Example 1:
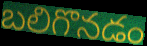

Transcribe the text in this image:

బలిగొనడం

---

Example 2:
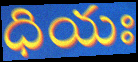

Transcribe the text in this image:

ధియః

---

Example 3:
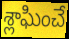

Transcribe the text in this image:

శ్లాఘించే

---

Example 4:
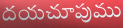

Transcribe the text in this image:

దయచూపుము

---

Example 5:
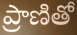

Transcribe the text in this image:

ప్రాణితో